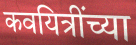
कवयित्रींच्या